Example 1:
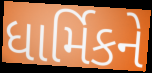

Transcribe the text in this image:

ધાર્મિકને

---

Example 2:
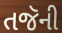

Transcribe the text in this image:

તજૅની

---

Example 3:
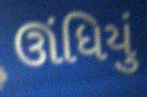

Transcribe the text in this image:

ઊંધિયું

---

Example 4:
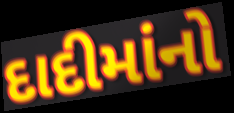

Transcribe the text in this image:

દાદીમાંનો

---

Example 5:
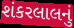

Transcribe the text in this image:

શંકરલાલનું